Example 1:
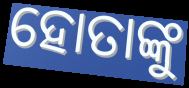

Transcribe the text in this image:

ହୋତାଙ୍କୁ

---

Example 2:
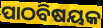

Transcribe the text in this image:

ପାଠବିଷୟକ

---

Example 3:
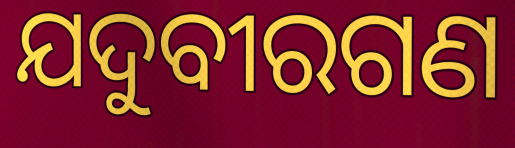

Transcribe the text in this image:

ଯଦୁବୀରଗଣ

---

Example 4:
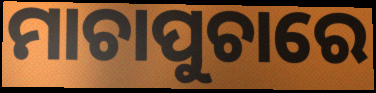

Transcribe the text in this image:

ମାଚାପୁଚାରେ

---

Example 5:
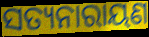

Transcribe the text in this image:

ସତ୍ଯନାରାୟଣ